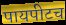
पायपीटच